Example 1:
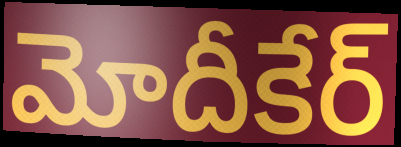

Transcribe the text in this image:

మోదీకేర్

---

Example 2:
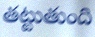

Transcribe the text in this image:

తట్టుతుంది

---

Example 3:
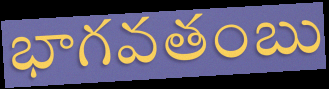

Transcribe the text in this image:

భాగవతంబు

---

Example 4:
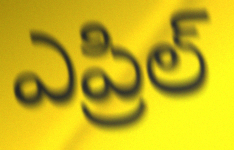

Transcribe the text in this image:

ఎప్రిల్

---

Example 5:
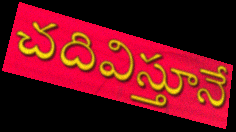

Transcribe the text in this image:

చదివిస్తూనే